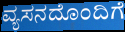
ವ್ಯಸನದೊಂದಿಗೆ